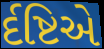
ર્દષ્ટિએ